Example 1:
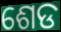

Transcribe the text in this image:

ଶେଡ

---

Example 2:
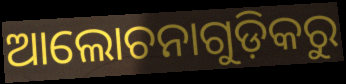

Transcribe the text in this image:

ଆଲୋଚନାଗୁଡ଼ିକରୁ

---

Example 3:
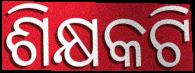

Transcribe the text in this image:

ଶିକ୍ଷକଟି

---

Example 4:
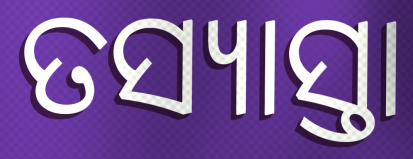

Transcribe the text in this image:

ତସ୍ୟାସ୍ତା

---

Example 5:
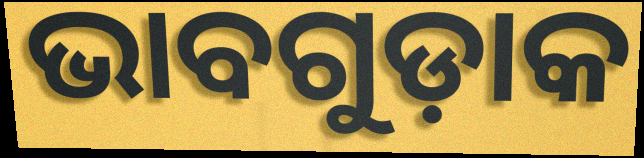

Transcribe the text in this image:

ଭାବଗୁଡ଼ାକ